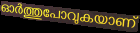
ഓർത്തുപോവുകയാണ്